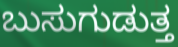
ಬುಸುಗುಡುತ್ತ